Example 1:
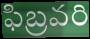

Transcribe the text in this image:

ఫిబ్రవరి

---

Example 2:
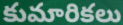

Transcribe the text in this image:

కుమారికలు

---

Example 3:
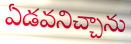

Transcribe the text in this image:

ఏడవనిచ్చాను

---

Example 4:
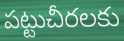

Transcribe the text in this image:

పట్టుచీరలకు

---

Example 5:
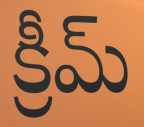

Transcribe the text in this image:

క్రీమ్